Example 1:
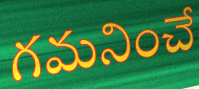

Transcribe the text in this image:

గమనించే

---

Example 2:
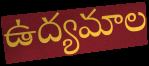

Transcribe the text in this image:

ఉద్యమాల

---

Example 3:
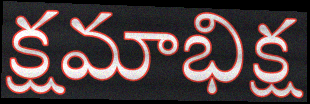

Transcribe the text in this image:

క్షమాభిక్ష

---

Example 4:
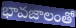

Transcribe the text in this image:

భావజాలంతో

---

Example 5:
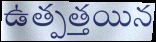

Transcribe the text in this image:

ఉత్పత్తయిన